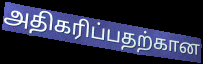
அதிகரிப்பதற்கான